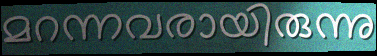
മറന്നവരായിരുന്നു